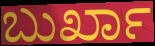
ಬುರ್ಖಾ